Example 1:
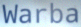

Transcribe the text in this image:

Warba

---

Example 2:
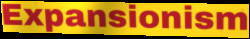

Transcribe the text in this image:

Expansionism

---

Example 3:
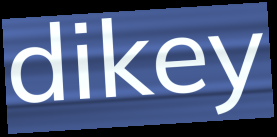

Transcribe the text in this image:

dikey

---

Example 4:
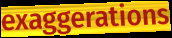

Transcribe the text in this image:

exaggerations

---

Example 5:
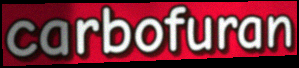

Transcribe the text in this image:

carbofuran